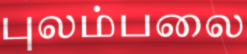
புலம்பலை